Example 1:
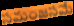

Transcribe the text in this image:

సమంజసమే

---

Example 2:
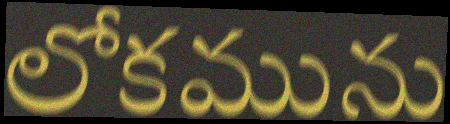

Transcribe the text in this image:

లోకమును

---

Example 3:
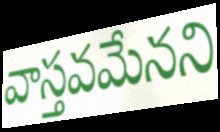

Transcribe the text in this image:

వాస్తవమేనని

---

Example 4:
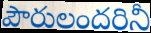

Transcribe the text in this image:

పౌరులందరినీ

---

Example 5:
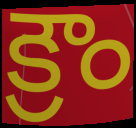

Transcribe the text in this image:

క్రౌం